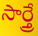
సార్త్రే